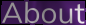
About